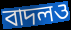
বাদলও